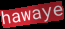
hawaye